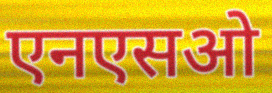
एनएसओ